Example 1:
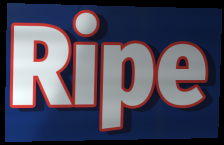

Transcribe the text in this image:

Ripe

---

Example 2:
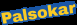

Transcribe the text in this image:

Palsokar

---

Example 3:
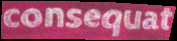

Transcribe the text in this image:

consequat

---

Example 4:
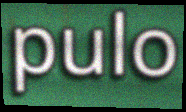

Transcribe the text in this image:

pulo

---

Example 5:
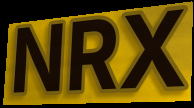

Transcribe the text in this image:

NRX